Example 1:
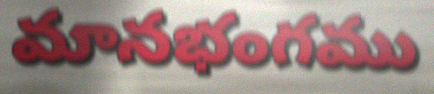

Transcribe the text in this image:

మానభంగము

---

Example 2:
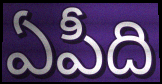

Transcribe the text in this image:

ఏపీది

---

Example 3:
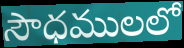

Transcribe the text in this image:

సౌధములలో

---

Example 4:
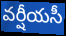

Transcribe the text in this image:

వర్షీయసీ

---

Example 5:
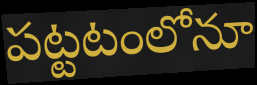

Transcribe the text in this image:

పట్టటంలోనూ